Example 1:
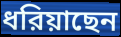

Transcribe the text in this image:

ধরিয়াছেন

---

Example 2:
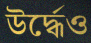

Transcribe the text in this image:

উর্দ্ধেও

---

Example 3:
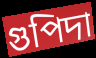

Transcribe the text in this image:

গুপিদা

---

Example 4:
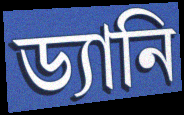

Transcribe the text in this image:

ড্যানি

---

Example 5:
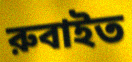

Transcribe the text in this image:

রুবাইত